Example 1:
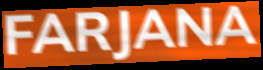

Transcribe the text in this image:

FARJANA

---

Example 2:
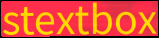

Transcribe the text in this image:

stextbox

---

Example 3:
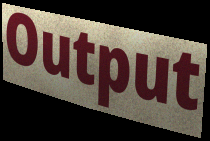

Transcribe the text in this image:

Output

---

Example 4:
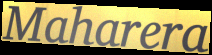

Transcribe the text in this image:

Maharera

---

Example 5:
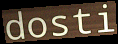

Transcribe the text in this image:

dosti